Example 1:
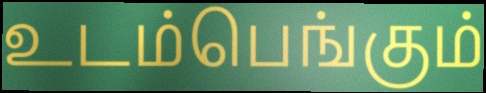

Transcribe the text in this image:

உடம்பெங்கும்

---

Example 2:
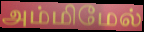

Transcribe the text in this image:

அம்மிமேல்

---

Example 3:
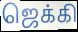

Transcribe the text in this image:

ஜெக்கி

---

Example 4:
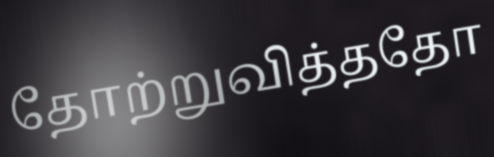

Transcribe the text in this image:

தோற்றுவித்ததோ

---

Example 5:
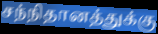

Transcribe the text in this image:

சந்நிதானத்துக்கு